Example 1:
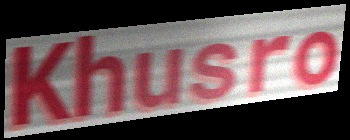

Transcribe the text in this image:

Khusro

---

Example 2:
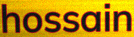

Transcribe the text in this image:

hossain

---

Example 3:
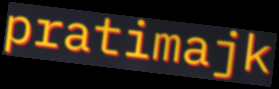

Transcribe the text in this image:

pratimajk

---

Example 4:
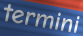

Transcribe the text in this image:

termini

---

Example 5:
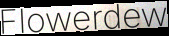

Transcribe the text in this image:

Flowerdew